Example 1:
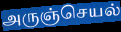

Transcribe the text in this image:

அருஞ்செயல்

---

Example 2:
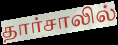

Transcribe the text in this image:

தார்சாலில்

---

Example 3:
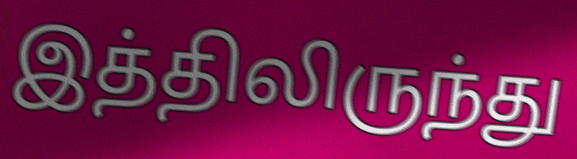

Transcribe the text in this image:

இத்திலிருந்து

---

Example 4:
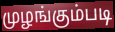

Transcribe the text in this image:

முழங்கும்படி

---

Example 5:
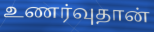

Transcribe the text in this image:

உணர்வுதான்